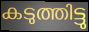
കടുത്തിട്ടു